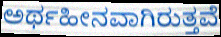
ಅರ್ಥಹೀನವಾಗಿರುತ್ತವೆ